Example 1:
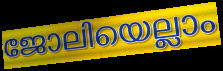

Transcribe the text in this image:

ജോലിയെല്ലാം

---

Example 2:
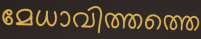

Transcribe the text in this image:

മേധാവിത്തത്തെ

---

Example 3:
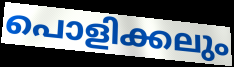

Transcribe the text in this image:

പൊളിക്കലും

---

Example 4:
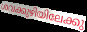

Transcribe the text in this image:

ശവക്കുഴിയിലേക്കു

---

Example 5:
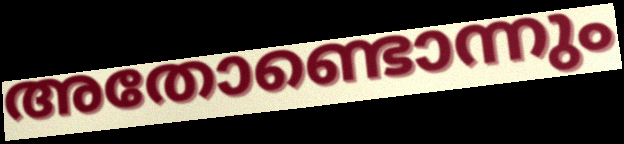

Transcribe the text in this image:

അതോണ്ടൊന്നും